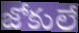
జోకులే